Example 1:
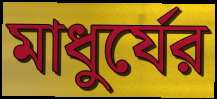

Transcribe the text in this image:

মাধুর্যের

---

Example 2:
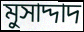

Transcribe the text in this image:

মুসাদ্দাদ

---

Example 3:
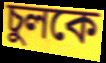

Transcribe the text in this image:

চুলকে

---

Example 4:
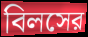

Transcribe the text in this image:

বিলসের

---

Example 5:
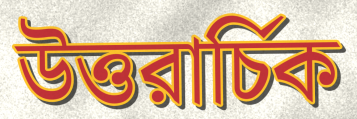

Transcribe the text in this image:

উত্তরার্চিক